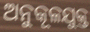
ଅନୁକୂଳଯୁକ୍ତ